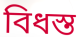
বিধস্ত